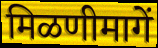
मिळणीमागें